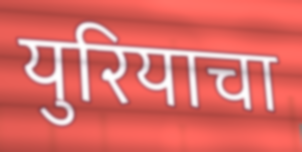
युरियाचा